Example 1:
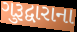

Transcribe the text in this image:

ગુરૂદ્વારાના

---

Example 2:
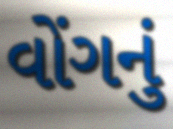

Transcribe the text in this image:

વોંગનું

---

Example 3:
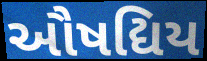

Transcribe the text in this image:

ઔષદ્યિય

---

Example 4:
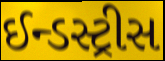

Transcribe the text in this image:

ઈન્ડસ્ટ્રીસ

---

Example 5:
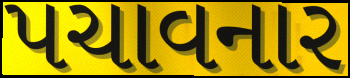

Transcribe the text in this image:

પચાવનાર